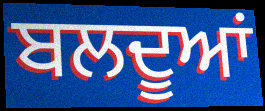
ਬਲਦੂਆਂ